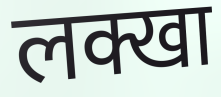
लक्खा